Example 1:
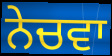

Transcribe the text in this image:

ਨੇਚਵਾ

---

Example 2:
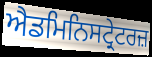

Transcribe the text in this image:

ਐਡਮਿਨਿਸਟ੍ਰੇਟਰਜ਼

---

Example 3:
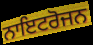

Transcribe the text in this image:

ਨਾਇਟਰੋਜਨ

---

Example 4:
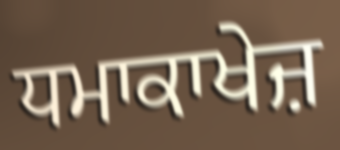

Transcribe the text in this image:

ਧਮਾਕਾਖੇਜ਼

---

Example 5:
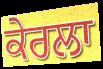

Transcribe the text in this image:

ਕੇਰਲਾ